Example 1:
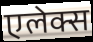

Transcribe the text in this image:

एलेक्स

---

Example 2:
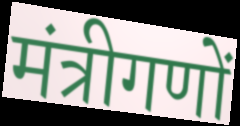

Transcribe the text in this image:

मंत्रीगणों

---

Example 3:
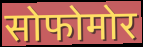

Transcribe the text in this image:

सोफोमोर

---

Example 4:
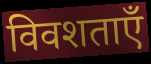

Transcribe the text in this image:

विवशताएँ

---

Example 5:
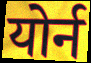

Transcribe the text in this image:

योर्न